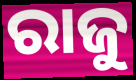
ରାଜୁ